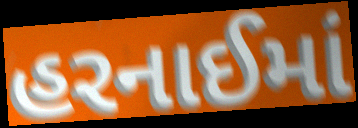
હરનાઈમાં